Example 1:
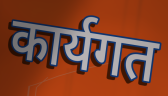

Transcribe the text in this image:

कार्यगत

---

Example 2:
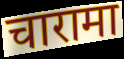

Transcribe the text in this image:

चारामा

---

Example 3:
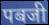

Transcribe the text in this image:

पबजी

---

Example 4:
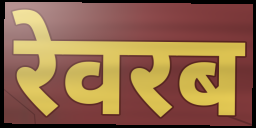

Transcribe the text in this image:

रेवरब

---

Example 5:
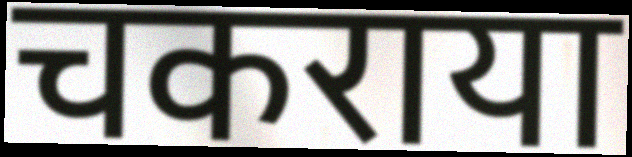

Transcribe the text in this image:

चकराया